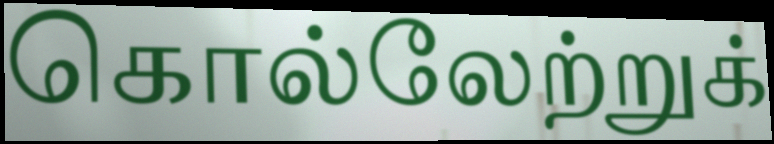
கொல்லேற்றுக்